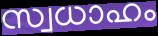
സ്വധാഹം